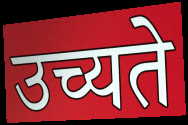
उच्यते